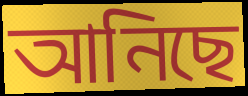
আনিছে